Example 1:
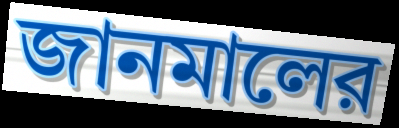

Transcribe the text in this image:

জানমালের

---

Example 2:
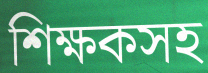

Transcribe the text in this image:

শিক্ষকসহ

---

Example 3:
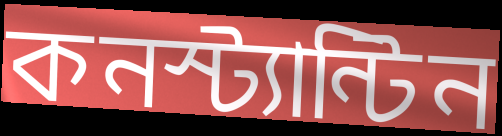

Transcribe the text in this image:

কনস্ট্যান্টিন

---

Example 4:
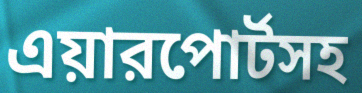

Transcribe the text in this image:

এয়ারপোর্টসহ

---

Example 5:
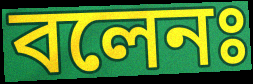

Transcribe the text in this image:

বলেনঃ